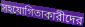
সহযোগিতাকারীদের